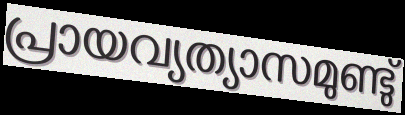
പ്രായവ്യത്യാസമുണ്ടു്